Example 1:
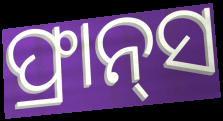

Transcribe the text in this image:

ଫ୍ରାନ୍‌ସ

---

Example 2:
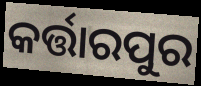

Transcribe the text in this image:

କର୍ତ୍ତାରପୁର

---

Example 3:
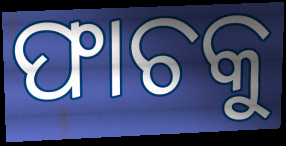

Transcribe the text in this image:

ଫାଚକୁ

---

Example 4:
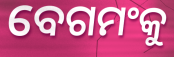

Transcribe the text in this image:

ବେଗମଂକୁ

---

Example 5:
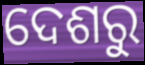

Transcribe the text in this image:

ଦେଶରୁ